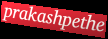
prakashpethe